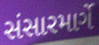
સંસારમાર્ગે